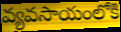
వ్యవసాయంలోకి